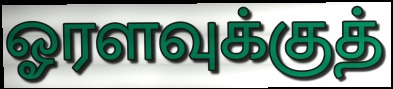
ஓரளவுக்குத்